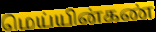
மெய்யின்கண்